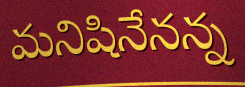
మనిషినేనన్న